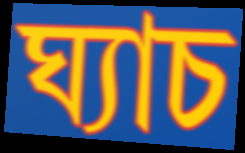
ঘ্যাচ